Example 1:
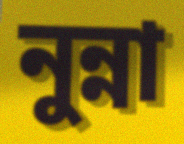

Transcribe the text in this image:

নুন্না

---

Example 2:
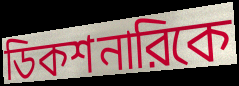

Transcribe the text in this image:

ডিকশনারিকে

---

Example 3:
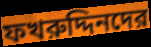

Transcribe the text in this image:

ফখরুদ্দিনদের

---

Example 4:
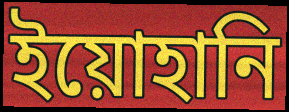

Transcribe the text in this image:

ইয়োহানি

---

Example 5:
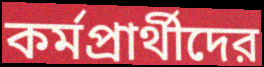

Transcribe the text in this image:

কর্মপ্রার্থীদের